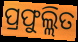
ପ୍ରଫୁଲ୍ଲିତ